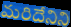
మరిదేనిని